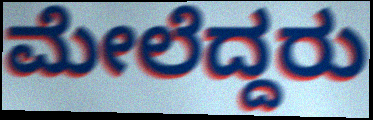
ಮೇಲೆದ್ದರು